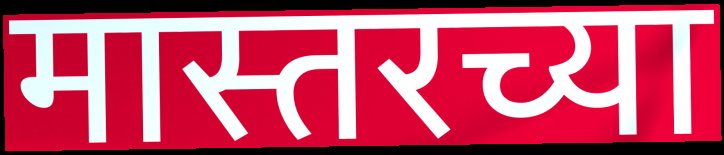
मास्तरच्या